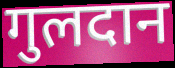
गुलदान